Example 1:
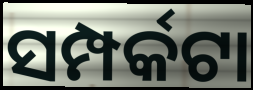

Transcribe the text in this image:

ସମ୍ପର୍କଟା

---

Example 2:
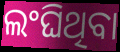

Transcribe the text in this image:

ଲଂଘିଥିବା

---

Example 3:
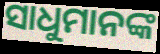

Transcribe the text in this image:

ସାଧୁମାନଙ୍କ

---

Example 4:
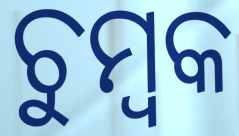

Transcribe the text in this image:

ଚୁମ୍ବକ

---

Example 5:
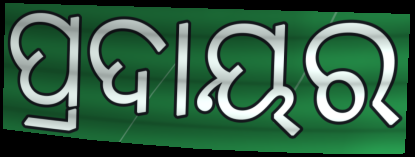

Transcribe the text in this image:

ପ୍ରଦାୟର